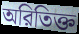
অরিতিক্ত